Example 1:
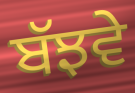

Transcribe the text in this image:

ਬੱਝਵੇ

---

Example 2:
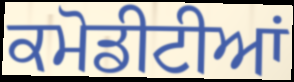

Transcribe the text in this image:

ਕਮੋਡੀਟੀਆਂ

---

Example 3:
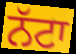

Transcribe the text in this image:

ਨੱਟਾ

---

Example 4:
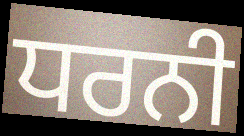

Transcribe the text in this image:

ਧਰਨੀ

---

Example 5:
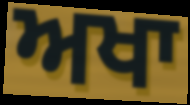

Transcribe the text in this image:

ਅਖਾ